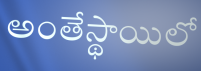
అంతేస్థాయిలో